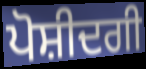
ਪੋਸ਼ੀਦਗੀ